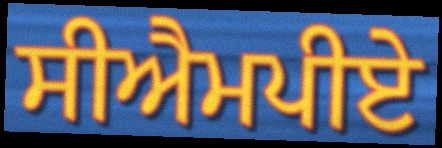
ਸੀਐਮਪੀਏ